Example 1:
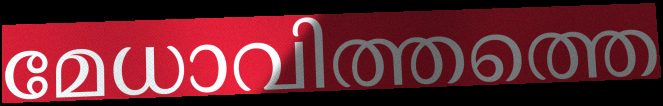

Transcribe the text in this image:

മേധാവിത്തത്തെ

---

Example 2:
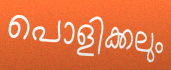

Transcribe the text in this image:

പൊളിക്കലും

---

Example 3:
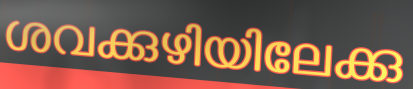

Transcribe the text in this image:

ശവക്കുഴിയിലേക്കു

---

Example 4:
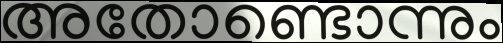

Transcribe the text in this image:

അതോണ്ടൊന്നും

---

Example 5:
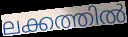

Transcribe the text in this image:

ലക്കത്തിൽ